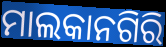
ମାଲକାନଗିରି